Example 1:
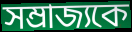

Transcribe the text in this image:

সম্রাজ্যকে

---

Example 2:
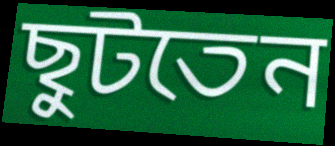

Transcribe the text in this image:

ছুটতেন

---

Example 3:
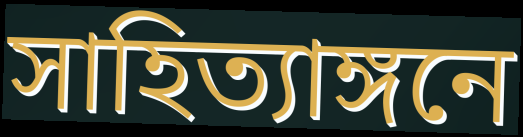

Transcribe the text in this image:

সাহিত্যাঙ্গনে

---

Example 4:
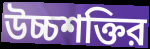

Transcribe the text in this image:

উচ্চশক্তির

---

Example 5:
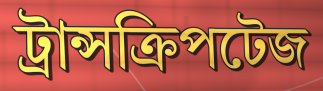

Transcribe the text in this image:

ট্রান্সক্রিপটেজ